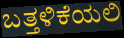
ಬತ್ತಳಿಕೆಯಲಿ